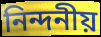
নিন্দনীয়